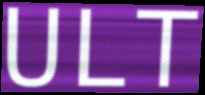
ULT